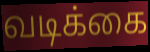
வடிக்கை